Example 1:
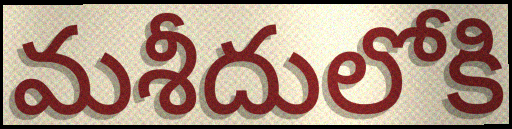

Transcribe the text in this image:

మశీదులోకి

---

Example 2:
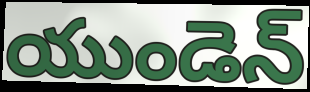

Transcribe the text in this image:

యుండెన్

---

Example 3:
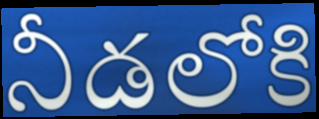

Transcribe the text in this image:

నీడలోకి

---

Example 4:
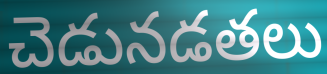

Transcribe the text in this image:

చెడునడతలు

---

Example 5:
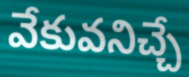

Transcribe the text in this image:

వేకువనిచ్చే